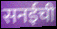
सनईची